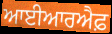
ਆਈਆਰਐਫ਼